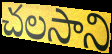
చలసాని